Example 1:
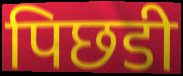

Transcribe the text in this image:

पिछडी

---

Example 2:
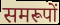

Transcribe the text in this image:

समरूपों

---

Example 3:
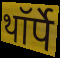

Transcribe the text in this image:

थॉर्पे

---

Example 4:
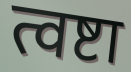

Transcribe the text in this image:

त्वष्टा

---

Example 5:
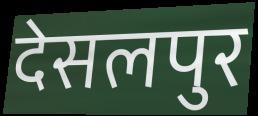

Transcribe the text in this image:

देसलपुर